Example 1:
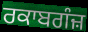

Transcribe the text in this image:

ਰਕਾਬਗੰਜ਼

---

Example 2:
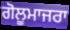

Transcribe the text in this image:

ਗੋਲੂਮਾਜਰਾ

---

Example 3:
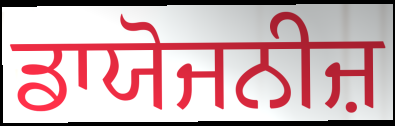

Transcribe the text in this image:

ਡਾਯੋਜਨੀਜ਼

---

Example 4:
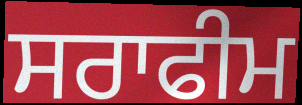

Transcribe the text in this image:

ਸਰਾਫੀਮ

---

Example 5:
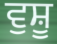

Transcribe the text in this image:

ਵੁਸ਼ੂ